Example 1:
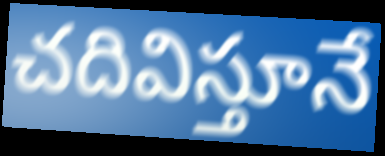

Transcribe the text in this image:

చదివిస్తూనే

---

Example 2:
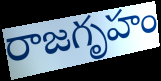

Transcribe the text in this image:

రాజగృహం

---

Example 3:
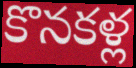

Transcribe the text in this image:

కొనకళ్ల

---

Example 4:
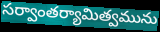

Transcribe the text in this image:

సర్వాంతర్యామిత్వమును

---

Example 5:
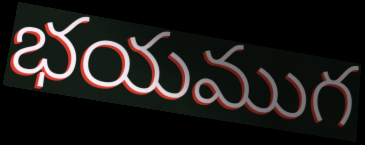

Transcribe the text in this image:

భయముగ